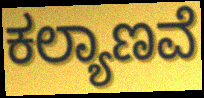
ಕಲ್ಯಾಣವೆ